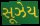
સૂઝેય